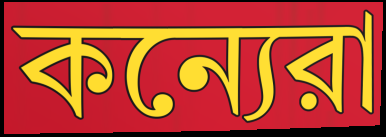
কন্যেরা